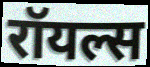
रॉयल्स